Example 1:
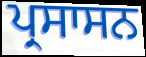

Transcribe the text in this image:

ਪ੍ਰਸਾਸਨ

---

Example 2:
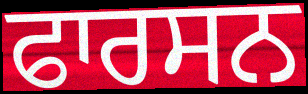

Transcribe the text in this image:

ਫਾਰਸਨ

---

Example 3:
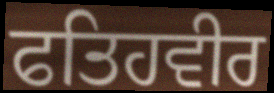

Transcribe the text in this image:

ਫਤਿਹਵੀਰ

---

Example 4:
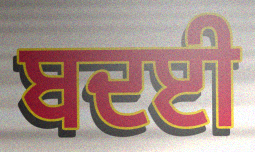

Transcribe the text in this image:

ਬਦਈ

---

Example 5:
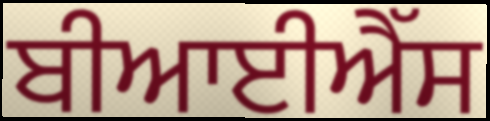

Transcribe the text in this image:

ਬੀਆਈਐੱਸ